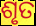
ଶୃତ